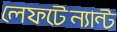
লেফটেন্যান্ট